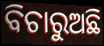
ବିଚାରୁଅଛି